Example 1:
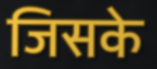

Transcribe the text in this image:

जिसके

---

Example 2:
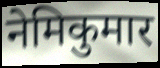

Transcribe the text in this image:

नेमिकुमार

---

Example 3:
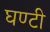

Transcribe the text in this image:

घण्टी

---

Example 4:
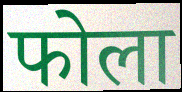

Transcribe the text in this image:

फोला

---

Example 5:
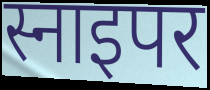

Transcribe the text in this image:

स्नाइपर